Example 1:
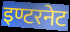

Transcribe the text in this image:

इण्टरनेट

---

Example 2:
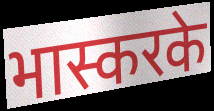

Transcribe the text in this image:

भास्करके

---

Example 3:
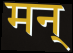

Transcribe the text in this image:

मन्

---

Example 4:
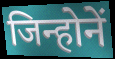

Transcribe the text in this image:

जिन्होनें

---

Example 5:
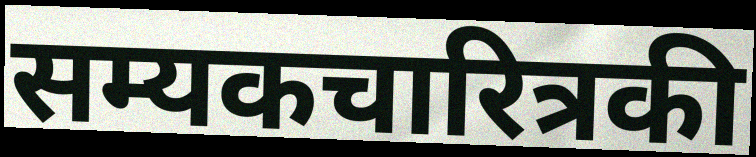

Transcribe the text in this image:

सम्यकचारित्रकी